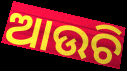
ଆଉଚି